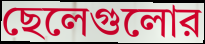
ছেলেগুলোর